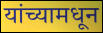
यांच्यामधून